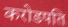
करोडपति